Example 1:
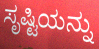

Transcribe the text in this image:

ಸೃಷ್ಟಿಯನ್ನು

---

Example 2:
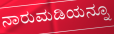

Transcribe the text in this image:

ನಾರುಮಡಿಯನ್ನೂ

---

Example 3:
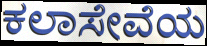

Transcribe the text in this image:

ಕಲಾಸೇವೆಯ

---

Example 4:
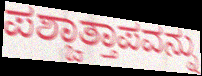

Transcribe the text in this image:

ಪಶ್ಚಾತ್ತಾಪವನ್ನು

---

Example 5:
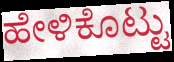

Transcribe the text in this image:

ಹೇಳಿಕೊಟ್ಟು